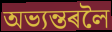
অভ্যন্তৰলৈ